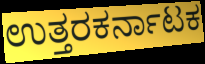
ಉತ್ತರಕರ್ನಾಟಕ